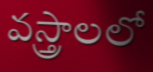
వస్త్రాలలో